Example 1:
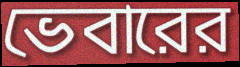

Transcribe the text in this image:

ভেবারের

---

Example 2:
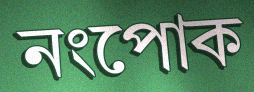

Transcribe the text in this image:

নংপোক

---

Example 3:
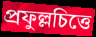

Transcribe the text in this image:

প্রফুল্লচিত্তে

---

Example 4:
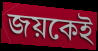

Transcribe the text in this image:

জয়কেই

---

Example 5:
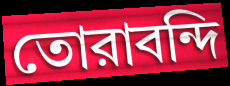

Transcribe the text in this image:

তোরাবন্দি